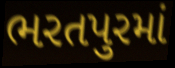
ભરતપુરમાં